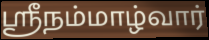
ஸ்ரீநம்மாழ்வார்